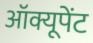
ऑक्यूपेंट